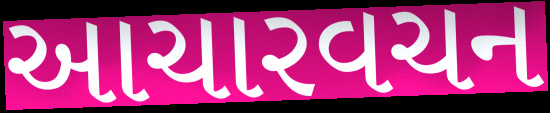
આચારવચન